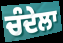
ਚੰਦੇਲਾ